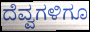
ದೆವ್ವಗಳಿಗೂ